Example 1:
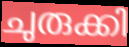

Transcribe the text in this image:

ചുരുക്കി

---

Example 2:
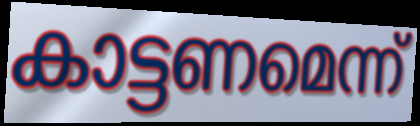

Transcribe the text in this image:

കാട്ടണമെന്ന്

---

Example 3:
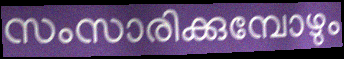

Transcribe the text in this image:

സംസാരിക്കുമ്പോഴും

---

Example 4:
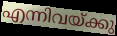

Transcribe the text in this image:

എന്നിവയ്ക്കു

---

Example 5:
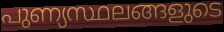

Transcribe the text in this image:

പുണ്യസ്ഥലങ്ങളുടെ